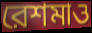
রেশমাও